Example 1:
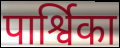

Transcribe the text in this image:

पार्श्विका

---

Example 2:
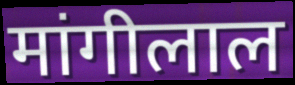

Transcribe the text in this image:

मांगीलाल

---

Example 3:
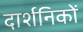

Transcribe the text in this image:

दार्शनिकों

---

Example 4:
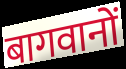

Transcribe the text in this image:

बागवानों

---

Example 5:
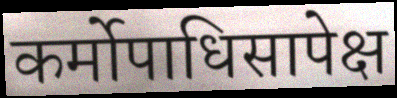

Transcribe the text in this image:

कर्मोपाधिसापेक्ष